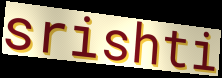
srishti